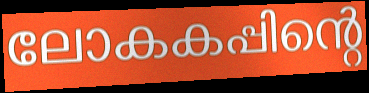
ലോകകപ്പിന്റെ